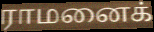
ராமனைக்